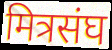
मित्रसंघ